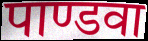
पाण्डवा